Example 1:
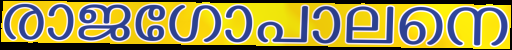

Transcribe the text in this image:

രാജഗോപാലനെ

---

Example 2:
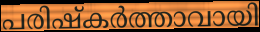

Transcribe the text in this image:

പരിഷ്കർത്താവായി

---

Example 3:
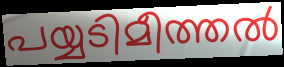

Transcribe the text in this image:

പയ്യടിമീത്തൽ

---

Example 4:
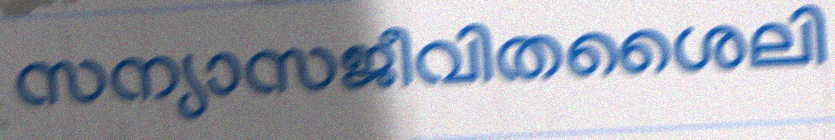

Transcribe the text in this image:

സന്യാസജീവിതശൈലി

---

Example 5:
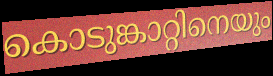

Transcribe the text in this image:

കൊടുങ്കാറ്റിനെയും